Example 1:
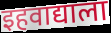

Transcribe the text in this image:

इहवाद्याला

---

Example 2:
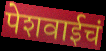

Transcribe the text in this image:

पेशवाईचं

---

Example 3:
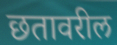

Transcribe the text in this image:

छतावरील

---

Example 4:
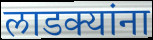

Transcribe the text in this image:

लाडक्यांना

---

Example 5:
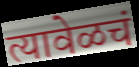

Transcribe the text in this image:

त्यावेळचं